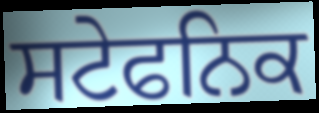
ਸਟੇਫਨਿਕ